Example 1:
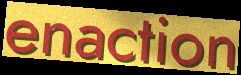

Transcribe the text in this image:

enaction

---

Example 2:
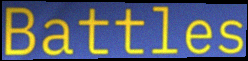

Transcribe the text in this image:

Battles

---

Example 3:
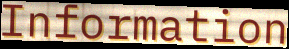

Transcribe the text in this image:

Information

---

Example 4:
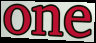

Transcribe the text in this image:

one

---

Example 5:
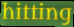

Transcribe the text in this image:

hitting